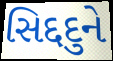
સિદ્દદુને